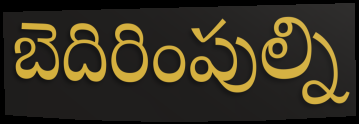
బెదిరింపుల్ని